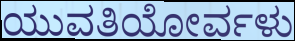
ಯುವತಿಯೋರ್ವಳು